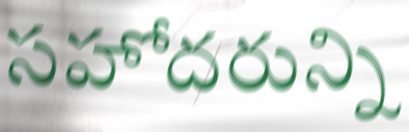
సహోదరున్ని